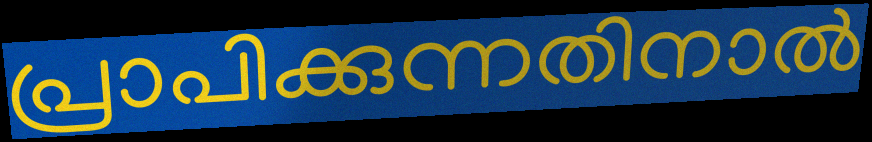
പ്രാപിക്കുന്നതിനാൽ